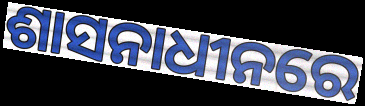
ଶାସନାଧୀନରେ